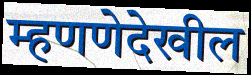
म्हणणेदेखील